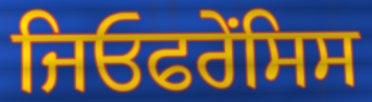
ਜਿਓਫਰੇਂਸਿਸ